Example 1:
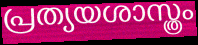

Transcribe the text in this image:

പ്രത്യയശാസ്ത്രം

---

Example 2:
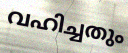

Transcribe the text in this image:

വഹിച്ചതും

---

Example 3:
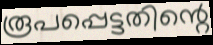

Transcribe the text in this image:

രൂപപ്പെട്ടതിന്റെ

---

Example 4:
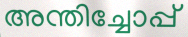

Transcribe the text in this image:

അന്തിച്ചോപ്പ്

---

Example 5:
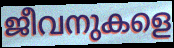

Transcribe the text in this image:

ജീവനുകളെ